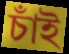
চাঁই